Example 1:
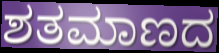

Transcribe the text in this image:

ಶತಮಾಣದ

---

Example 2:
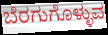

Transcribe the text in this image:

ಬೆರಗುಗೊಳ್ಳುವ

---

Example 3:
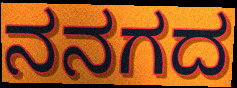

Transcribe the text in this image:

ನನಗದ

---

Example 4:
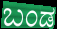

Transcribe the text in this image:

ಬಂಡ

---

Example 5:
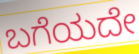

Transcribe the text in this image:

ಬಗೆಯದೇ